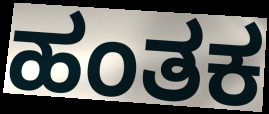
ಹಂತಕ